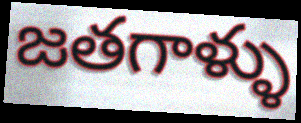
జతగాళ్ళు